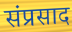
संप्रसाद